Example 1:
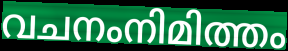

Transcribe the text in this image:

വചനംനിമിത്തം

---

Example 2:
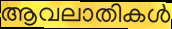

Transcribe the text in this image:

ആവലാതികൾ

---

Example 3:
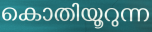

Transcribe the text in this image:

കൊതിയൂറുന്ന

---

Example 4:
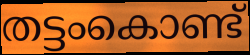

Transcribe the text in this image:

തട്ടംകൊണ്ട്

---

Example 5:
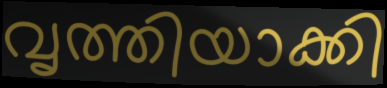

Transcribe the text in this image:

വൃത്തിയാക്കി